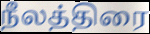
நீலத்திரை